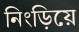
নিংড়িয়ে